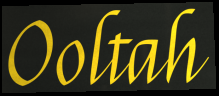
Ooltah